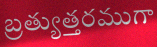
బ్రత్యుత్తరముగా